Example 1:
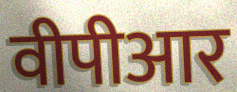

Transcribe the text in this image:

वीपीआर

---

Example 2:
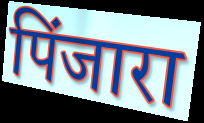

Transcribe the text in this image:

पिंजारा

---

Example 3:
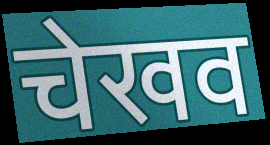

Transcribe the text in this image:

चेखव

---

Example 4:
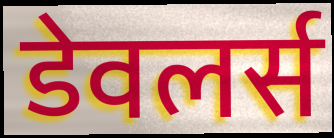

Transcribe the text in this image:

डेवलर्स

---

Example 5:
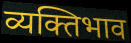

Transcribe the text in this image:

व्यक्तिभाव